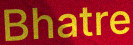
Bhatre